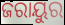
ଜରାୟୁର